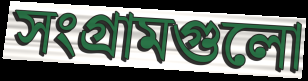
সংগ্রামগুলো